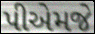
પીએમજે